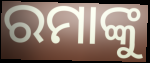
ରମାଙ୍କୁ